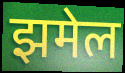
झमेल